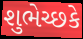
શુભેચ્છકે